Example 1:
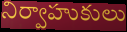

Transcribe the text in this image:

నిర్వాహుకులు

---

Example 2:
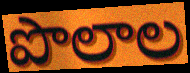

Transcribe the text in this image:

పొలాల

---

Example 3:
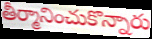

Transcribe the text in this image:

తీర్మానించుకొన్నారు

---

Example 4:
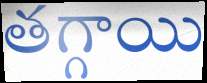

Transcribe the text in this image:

తగ్గాయి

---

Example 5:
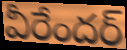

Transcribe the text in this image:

వీరేందర్